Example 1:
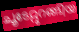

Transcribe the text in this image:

ചൂടേറ്റുറങ്ങിയ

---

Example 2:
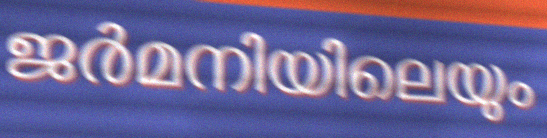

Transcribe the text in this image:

ജർമനിയിലെയും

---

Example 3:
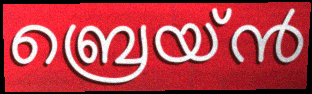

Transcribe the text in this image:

ബ്രെയ്ൻ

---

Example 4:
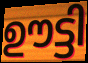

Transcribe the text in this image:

ഊട്ടി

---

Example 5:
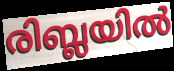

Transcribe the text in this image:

രിബ്ലയിൽ